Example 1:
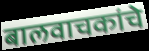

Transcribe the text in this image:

बालवाचकांचे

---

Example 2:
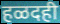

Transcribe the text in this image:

हळदही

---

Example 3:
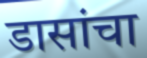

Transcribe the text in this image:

डासांचा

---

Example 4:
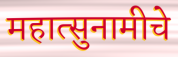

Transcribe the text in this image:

महात्सुनामीचे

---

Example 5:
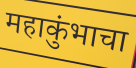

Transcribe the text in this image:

महाकुंभाचा